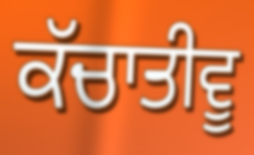
ਕੱਚਾਤੀਵੂ